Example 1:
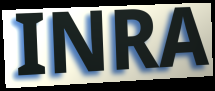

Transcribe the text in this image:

INRA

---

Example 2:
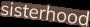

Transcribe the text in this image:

sisterhood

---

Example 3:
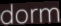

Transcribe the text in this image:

dorm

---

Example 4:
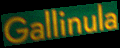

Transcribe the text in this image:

Gallinula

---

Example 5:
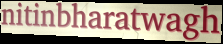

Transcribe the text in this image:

nitinbharatwagh